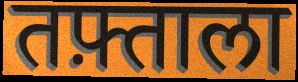
तफ़्ताला